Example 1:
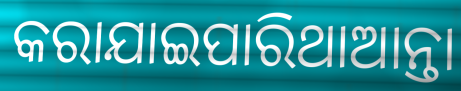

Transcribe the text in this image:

କରାଯାଇପାରିଥାଆନ୍ତା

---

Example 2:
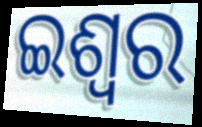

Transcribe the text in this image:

ଇଶ୍ଵର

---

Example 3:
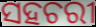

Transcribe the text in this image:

ସହଚରୀ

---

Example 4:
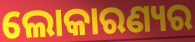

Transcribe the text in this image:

ଲୋକାରଣ୍ୟର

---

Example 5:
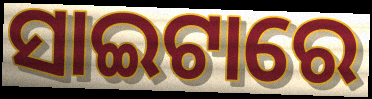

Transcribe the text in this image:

ସାଇଟାରେ